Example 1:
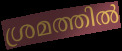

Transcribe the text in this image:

ശ്രമത്തിൽ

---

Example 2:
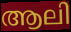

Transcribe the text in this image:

ആലി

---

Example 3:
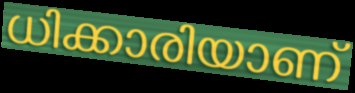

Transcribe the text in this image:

ധിക്കാരിയാണ്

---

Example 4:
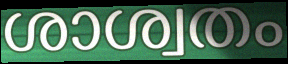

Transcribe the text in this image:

ശാശ്വതം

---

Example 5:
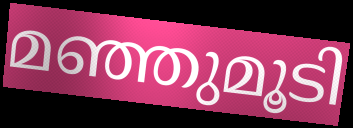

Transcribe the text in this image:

മഞ്ഞുമൂടി